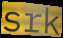
srk